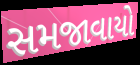
સમજાવાયો